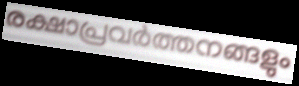
രക്ഷാപ്രവർത്തനങ്ങളും